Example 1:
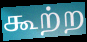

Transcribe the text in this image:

கூற்ற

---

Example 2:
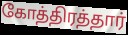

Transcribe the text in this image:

கோத்திரத்தார்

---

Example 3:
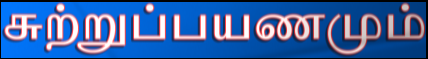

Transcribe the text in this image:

சுற்றுப்பயணமும்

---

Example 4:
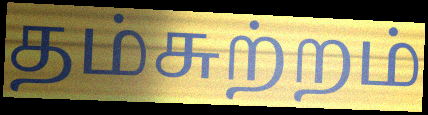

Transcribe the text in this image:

தம்சுற்றம்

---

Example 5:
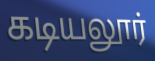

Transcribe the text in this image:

கடியலூர்